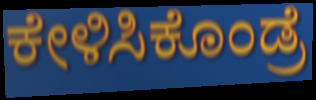
ಕೇಳಿಸಿಕೊಂಡ್ರೆ